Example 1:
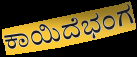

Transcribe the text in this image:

ಕಾಯಿದೆಭಂಗ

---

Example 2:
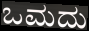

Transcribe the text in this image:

ಒಮದು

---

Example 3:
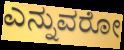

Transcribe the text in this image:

ಎನ್ನುವರೋ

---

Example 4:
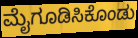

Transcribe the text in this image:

ಮೈಗೂಡಿಸಿಕೊಂಡು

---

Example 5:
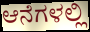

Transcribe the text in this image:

ಆನೆಗಳಲ್ಲಿ